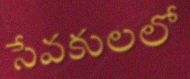
సేవకులలో